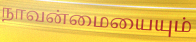
நாவன்மையையும்